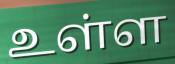
உள்ள